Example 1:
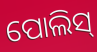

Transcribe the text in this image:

ପୋଲିସ୍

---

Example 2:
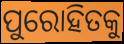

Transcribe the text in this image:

ପୁରୋହିତକୁ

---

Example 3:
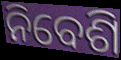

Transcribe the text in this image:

ନିବେଶି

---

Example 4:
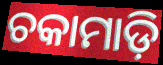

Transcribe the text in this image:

ଚକାମାଡ଼ି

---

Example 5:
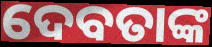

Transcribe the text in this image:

ଦେବତାଙ୍କ